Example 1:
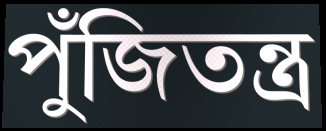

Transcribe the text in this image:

পুঁজিতন্ত্র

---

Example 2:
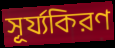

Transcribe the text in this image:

সূর্য্যকিরণ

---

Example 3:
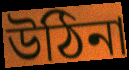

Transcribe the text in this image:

উঠিনা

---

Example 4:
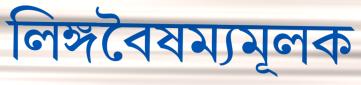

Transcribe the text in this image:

লিঙ্গবৈষম্যমূলক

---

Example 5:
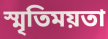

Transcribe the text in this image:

স্মৃতিময়তা